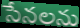
సేనలను